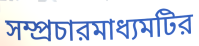
সম্প্রচারমাধ্যমটির